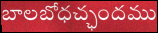
బాలబోధచ్ఛందము